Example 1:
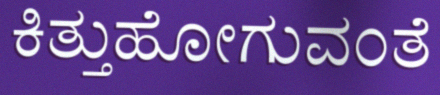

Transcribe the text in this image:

ಕಿತ್ತುಹೋಗುವಂತೆ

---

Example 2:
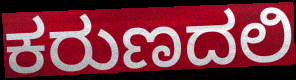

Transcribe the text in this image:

ಕರುಣದಲಿ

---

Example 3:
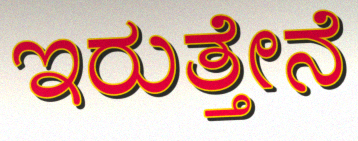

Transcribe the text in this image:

ಇರುತ್ತೇನೆ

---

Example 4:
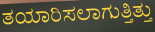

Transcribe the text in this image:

ತಯಾರಿಸಲಾಗುತ್ತಿತ್ತು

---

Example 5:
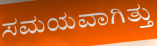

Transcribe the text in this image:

ಸಮಯವಾಗಿತ್ತು